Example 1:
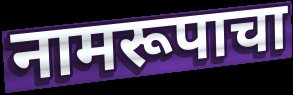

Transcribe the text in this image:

नामरूपाचा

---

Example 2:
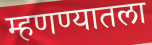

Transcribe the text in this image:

म्हणण्यातला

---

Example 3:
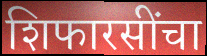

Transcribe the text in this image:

शिफारसींचा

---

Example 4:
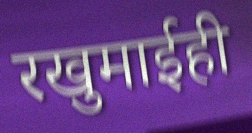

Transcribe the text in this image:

रखुमाईही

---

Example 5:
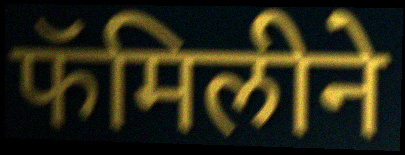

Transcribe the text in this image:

फॅमिलीने